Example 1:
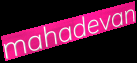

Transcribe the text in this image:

mahadevan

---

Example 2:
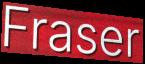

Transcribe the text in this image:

Fraser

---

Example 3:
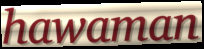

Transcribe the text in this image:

hawaman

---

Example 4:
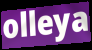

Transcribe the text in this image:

olleya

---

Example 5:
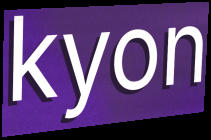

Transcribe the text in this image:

kyon